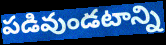
పడివుండటాన్ని